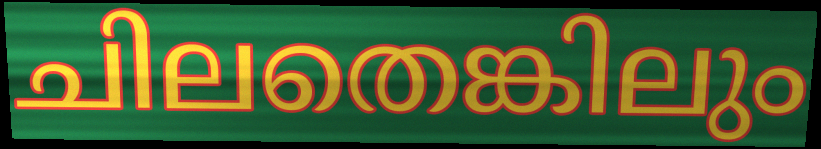
ചിലതെങ്കിലും